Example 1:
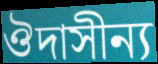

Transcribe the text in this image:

ঔদাসীন্য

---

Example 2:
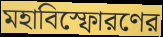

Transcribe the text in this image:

মহাবিস্ফোরণের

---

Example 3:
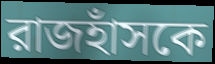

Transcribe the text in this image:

রাজহাঁসকে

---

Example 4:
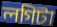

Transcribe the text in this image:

লগিটা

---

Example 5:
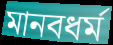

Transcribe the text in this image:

মানবধর্ম